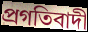
প্রগতিবাদী